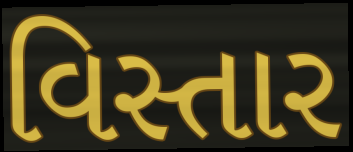
વિસ્તાર